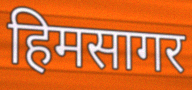
हिमसागर